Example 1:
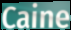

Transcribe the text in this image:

Caine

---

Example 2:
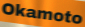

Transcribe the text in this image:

Okamoto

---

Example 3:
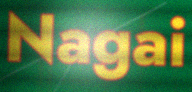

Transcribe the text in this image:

Nagai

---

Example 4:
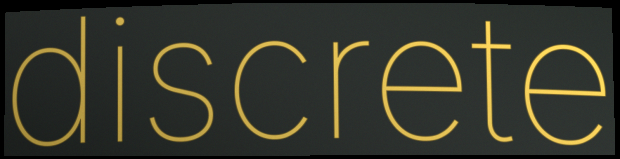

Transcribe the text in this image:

discrete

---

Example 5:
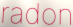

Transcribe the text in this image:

radon